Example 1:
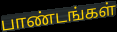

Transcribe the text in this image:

பாண்டங்கள்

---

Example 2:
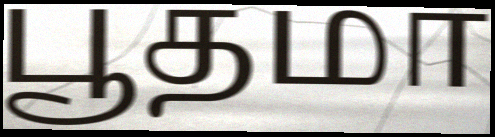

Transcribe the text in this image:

பூதமா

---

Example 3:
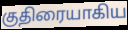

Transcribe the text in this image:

குதிரையாகிய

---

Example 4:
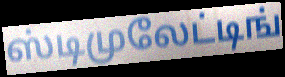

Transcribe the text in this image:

ஸ்டிமுலேட்டிங்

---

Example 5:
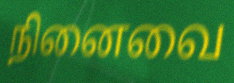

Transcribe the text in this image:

நினைவை